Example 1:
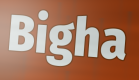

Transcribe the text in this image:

Bigha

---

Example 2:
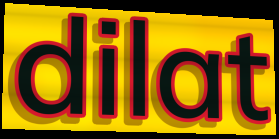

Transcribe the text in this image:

dilat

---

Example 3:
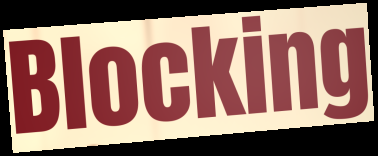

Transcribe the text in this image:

Blocking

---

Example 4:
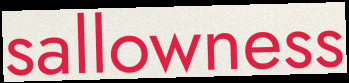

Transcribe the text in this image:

sallowness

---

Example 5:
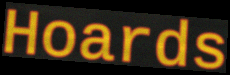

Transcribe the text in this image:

Hoards